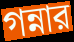
গন্নার